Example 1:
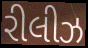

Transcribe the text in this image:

રીલીઝ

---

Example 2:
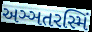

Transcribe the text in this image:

અઞ્ઞતરસ્મિં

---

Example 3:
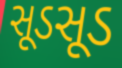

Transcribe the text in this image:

સૂડસૂડ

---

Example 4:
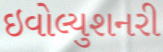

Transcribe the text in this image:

ઇવોલ્યુશનરી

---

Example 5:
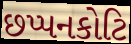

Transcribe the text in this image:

છપ્પનકોટિ